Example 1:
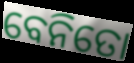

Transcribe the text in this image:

ବେନିତୋ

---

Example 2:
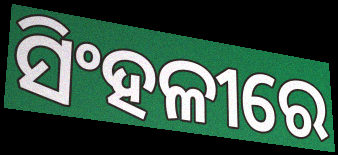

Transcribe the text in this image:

ସିଂହଳୀରେ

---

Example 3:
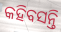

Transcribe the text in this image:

କହିବସନ୍ତି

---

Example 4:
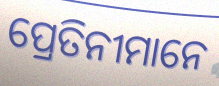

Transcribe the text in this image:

ପ୍ରେତିନୀମାନେ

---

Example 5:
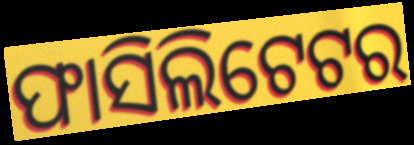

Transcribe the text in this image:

ଫାସିଲିଟେଟର